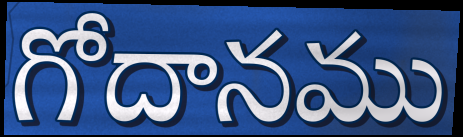
గోదానము